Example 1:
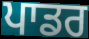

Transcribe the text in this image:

ਪਾਡਰ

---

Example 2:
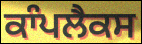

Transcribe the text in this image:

ਕਾੰਪਲੈਕਸ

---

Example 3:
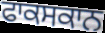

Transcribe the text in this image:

ਫਾਕਸਕਾਨ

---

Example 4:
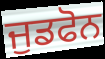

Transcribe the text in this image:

ਜੁਡਫੋਨ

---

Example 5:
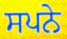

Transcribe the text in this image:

ਸਪਨੇ